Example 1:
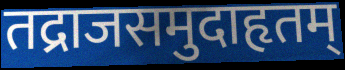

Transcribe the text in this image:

तद्राजसमुदाहृतम्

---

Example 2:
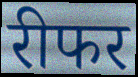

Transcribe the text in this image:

रीफर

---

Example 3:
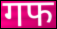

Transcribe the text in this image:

गफ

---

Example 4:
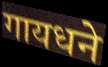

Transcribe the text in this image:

गायधने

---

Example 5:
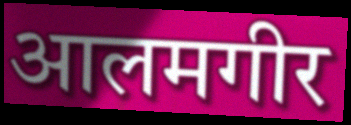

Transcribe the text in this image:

आलमगीर